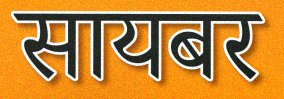
सायबर